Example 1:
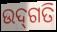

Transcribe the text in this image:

ଉଦ୍‌ଗତି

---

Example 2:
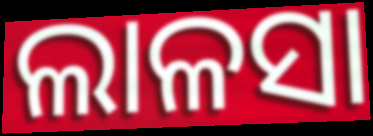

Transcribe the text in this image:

ଲାଳସା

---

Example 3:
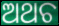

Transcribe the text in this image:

ଅଥଚ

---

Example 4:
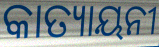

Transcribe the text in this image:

କାତ୍ୟାୟନୀ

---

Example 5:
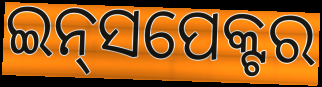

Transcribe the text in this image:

ଇନ୍‍ସପେକ୍ଟର